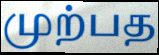
முற்பத